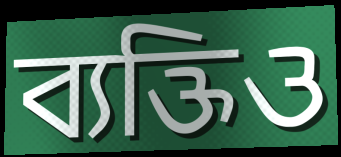
ব্যক্তিও